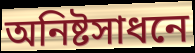
অনিষ্টসাধনে